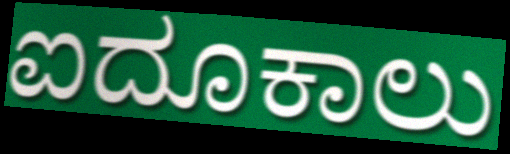
ಐದೂಕಾಲು